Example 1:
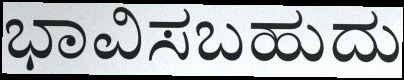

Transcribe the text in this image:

ಭಾವಿಸಬಹುದು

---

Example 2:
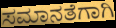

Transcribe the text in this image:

ಸಮಾನತೆಗಾಗಿ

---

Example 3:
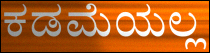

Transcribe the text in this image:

ಕಡಮೆಯಲ್ಲ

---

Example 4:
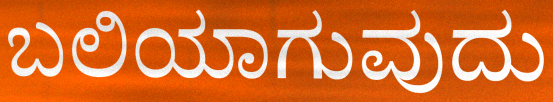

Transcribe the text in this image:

ಬಲಿಯಾಗುವುದು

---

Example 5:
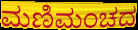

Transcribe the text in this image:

ಮಣಿಮಂಚದ